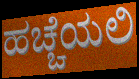
ಹಚ್ಚೆಯಲಿ